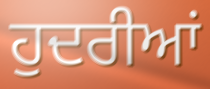
ਹੁਦਰੀਆਂ